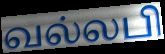
வல்லபி